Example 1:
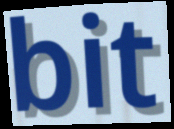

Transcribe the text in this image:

bit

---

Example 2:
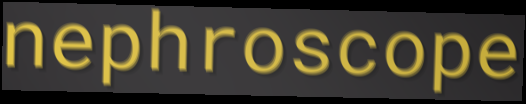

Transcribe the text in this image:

nephroscope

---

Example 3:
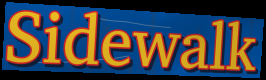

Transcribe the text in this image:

Sidewalk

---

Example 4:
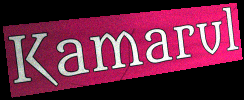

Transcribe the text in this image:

Kamarul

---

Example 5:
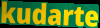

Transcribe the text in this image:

kudarte